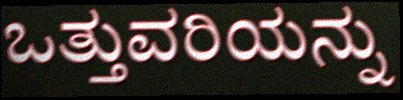
ಒತ್ತುವರಿಯನ್ನು